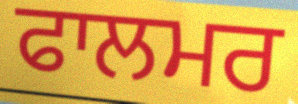
ਫਾਲਮਰ